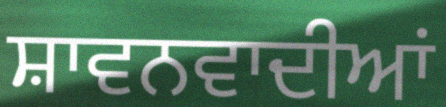
ਸ਼ਾਵਨਵਾਦੀਆਂ